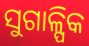
ସୁଗାଳ୍ପିକ